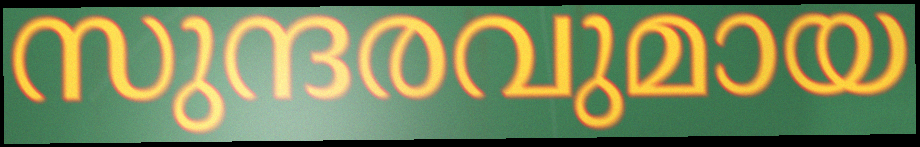
സുന്ദരവുമായ